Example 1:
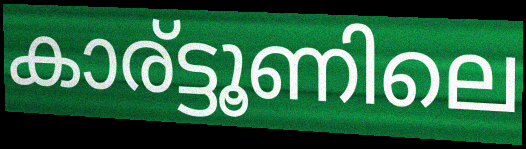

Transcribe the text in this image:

കാര്ട്ടൂണിലെ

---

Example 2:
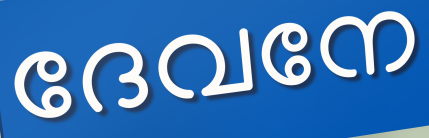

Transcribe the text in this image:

ദേവനേ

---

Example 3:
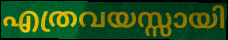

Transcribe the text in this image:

എത്രവയസ്സായി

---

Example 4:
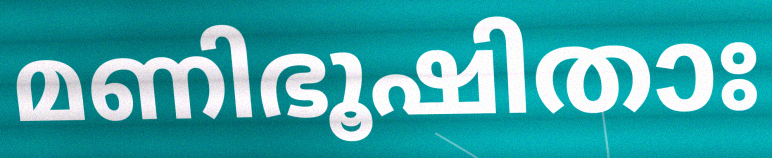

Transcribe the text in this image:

മണിഭൂഷിതാഃ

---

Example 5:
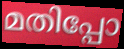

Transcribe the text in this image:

മതിപ്പോ